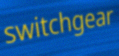
switchgear